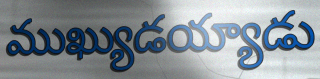
ముఖ్యుడయ్యాడు